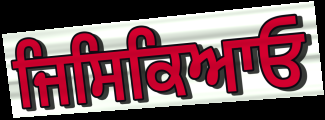
ਜਿਸਿਕਿਆਓ